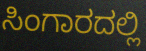
ಸಿಂಗಾರದಲ್ಲಿ